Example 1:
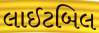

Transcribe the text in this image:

લાઈટબિલ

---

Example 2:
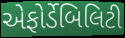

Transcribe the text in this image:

એફોર્ડેબિલિટી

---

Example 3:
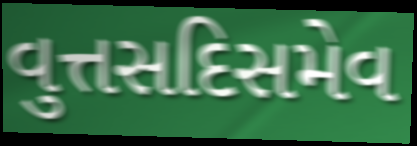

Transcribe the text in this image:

વુત્તસદિસમેવ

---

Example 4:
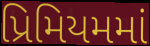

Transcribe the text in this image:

પ્રિમિયમમાં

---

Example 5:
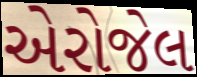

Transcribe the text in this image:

એરોજેલ